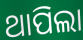
ଥାପିଲା